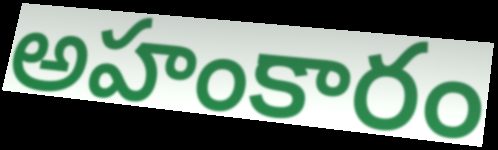
అహంకారం